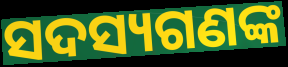
ସଦସ୍ୟଗଣଙ୍କ